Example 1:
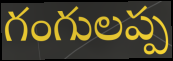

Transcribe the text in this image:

గంగులప్ప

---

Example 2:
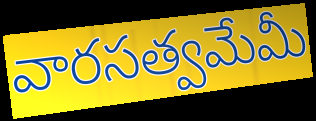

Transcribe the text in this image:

వారసత్వమేమీ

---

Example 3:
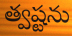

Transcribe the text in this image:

త్వష్టను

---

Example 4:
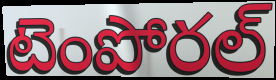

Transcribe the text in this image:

టెంపోరల్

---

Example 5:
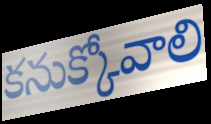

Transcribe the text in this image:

కనుక్కోవాలి